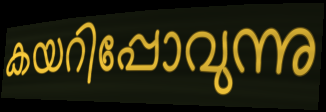
കയറിപ്പോവുന്നു